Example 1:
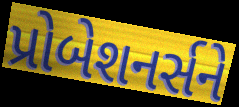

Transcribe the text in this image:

પ્રોબેશનર્સને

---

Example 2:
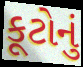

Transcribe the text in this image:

કૂટોનું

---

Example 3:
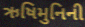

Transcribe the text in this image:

ઋષિમુનિની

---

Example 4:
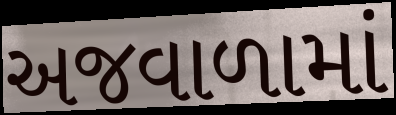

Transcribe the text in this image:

અજવાળામાં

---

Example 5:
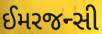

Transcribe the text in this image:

ઈમરજન્સી